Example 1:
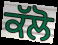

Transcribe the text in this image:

ਕੱਲੋ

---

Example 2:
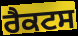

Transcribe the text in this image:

ਰੈਕਟਸ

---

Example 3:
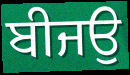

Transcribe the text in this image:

ਬੀਜਉ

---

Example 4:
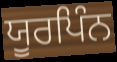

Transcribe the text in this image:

ਯੂਰਪਿੰਨ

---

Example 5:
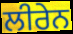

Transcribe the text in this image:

ਲੀਰੇਨ